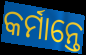
କର୍ମାନ୍ତେ